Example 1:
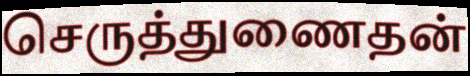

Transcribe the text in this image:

செருத்துணைதன்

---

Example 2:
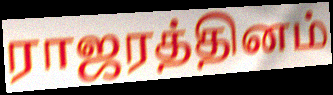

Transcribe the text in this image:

ராஜரத்தினம்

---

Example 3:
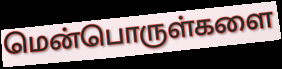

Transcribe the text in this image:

மென்பொருள்களை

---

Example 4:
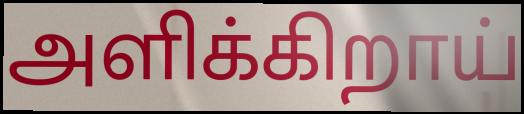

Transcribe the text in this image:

அளிக்கிறாய்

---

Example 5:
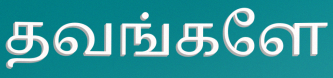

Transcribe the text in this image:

தவங்களே